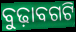
ବୁଢ଼ାବଗଟି